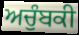
ਅਚੁੰਬਕੀ